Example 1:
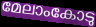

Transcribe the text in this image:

മേലാംകോടു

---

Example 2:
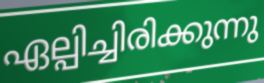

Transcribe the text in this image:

ഏല്പിച്ചിരിക്കുന്നു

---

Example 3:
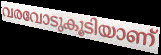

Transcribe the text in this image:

വരവോടുകൂടിയാണ്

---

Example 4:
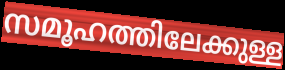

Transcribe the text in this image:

സമൂഹത്തിലേക്കുള്ള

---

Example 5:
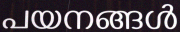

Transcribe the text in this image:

പയനങ്ങൾ